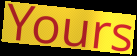
Yours